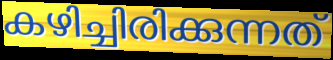
കഴിച്ചിരിക്കുന്നത്